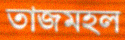
তাজমহল